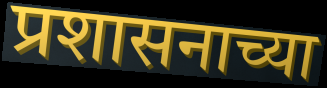
प्रशासनाच्या